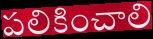
పలికించాలి